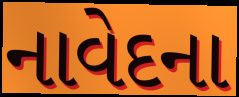
નાવેદના